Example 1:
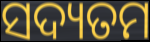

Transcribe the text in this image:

ସଦ୍ୟତମ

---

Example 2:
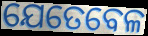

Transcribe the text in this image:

ଯେତେବେଳ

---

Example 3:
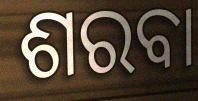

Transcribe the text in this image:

ଶରବା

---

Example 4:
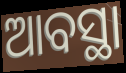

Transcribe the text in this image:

ଆବସ୍ଥା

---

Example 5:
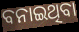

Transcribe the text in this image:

ବନାଇଥିବା